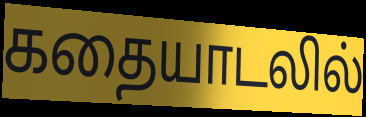
கதையாடலில்